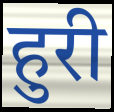
हुरी